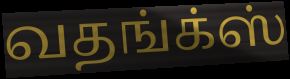
வதங்க்ஸ்